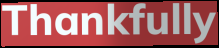
Thankfully